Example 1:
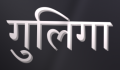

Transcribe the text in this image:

गुलिगा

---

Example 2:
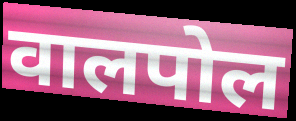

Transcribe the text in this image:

वालपोल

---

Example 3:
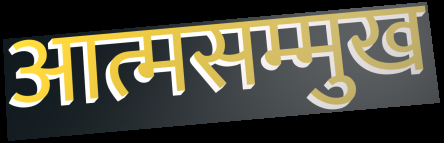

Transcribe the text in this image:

आत्मसम्मुख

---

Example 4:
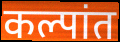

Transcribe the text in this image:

कल्पांत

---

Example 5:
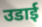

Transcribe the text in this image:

उडाई